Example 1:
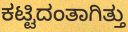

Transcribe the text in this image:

ಕಟ್ಟಿದಂತಾಗಿತ್ತು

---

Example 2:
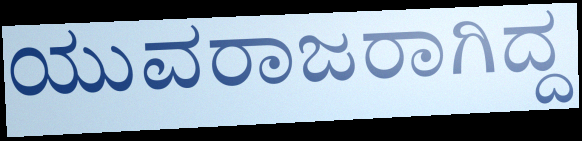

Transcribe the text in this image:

ಯುವರಾಜರಾಗಿದ್ದ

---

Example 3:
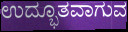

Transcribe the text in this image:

ಉದ್ಭೂತವಾಗುವ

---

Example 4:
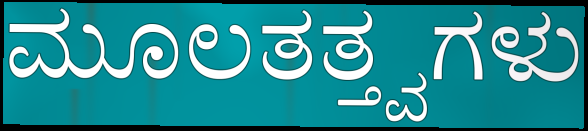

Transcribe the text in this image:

ಮೂಲತತ್ತ್ವಗಳು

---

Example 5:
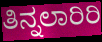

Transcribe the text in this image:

ತಿನ್ನಲಾರಿರಿ